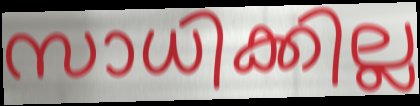
സാധിക്കില്ല